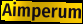
Aimperum